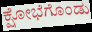
ಕ್ಷೋಭೆಗೊಂಡು